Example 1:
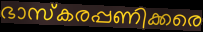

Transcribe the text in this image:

ഭാസ്കരപ്പണിക്കരെ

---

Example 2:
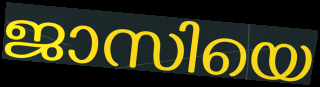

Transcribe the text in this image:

ജാസിയെ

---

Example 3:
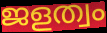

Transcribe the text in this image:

ജളത്വം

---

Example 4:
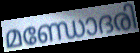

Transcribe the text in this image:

മണ്ഡോദരി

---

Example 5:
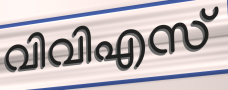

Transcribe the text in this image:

വിവിഎസ്